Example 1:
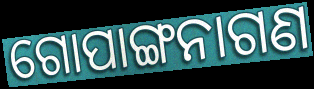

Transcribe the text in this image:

ଗୋପାଙ୍ଗନାଗଣ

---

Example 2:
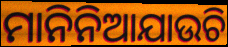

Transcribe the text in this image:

ମାନିନିଆଯାଉଚି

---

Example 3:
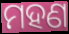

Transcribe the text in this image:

ମହଣ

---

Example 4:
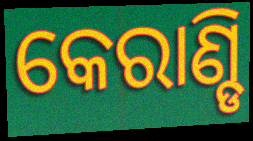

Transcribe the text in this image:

କେରାଣ୍ଡି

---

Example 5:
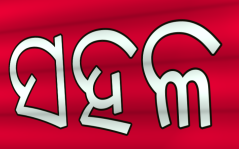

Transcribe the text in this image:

ସହଳ